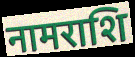
नामराशि